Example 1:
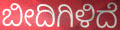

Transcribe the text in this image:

ಬೀದಿಗಿಳಿದೆ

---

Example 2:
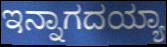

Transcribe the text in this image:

ಇನ್ನಾಗದಯ್ಯಾ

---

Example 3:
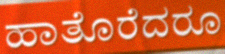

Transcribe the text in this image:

ಹಾತೊರೆದರೂ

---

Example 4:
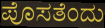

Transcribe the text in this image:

ಪೊಸತೆಂದು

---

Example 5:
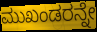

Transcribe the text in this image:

ಮುಖಂಡರನ್ನೇ